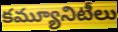
కమ్యూనిటీలు